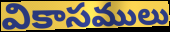
వికాసములు